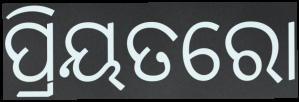
ପ୍ରିୟତରୋ